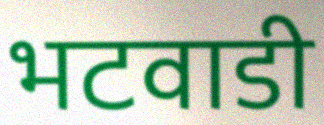
भटवाडी